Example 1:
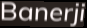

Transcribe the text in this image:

Banerji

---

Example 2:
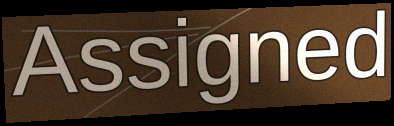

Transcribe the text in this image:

Assigned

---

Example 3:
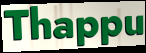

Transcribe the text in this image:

Thappu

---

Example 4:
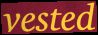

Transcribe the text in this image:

vested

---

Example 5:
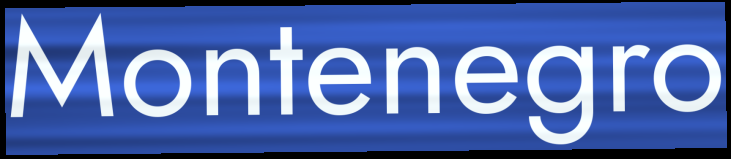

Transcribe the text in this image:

Montenegro